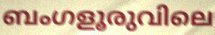
ബംഗളൂരുവിലെ